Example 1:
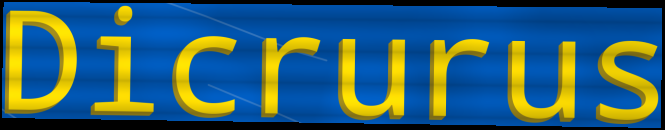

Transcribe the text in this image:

Dicrurus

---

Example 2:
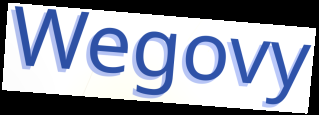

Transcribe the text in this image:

Wegovy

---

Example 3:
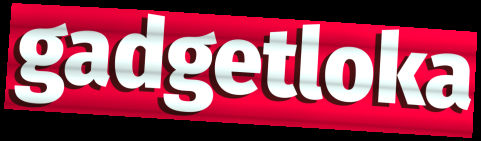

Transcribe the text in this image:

gadgetloka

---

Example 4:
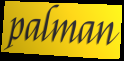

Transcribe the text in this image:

palman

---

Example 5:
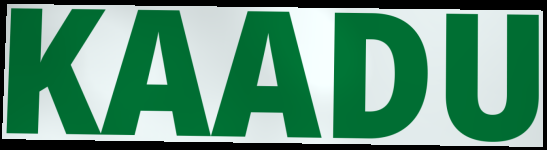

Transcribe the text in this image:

KAADU